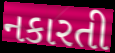
નકારતી